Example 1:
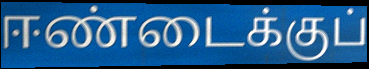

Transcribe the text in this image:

ஈண்டைக்குப்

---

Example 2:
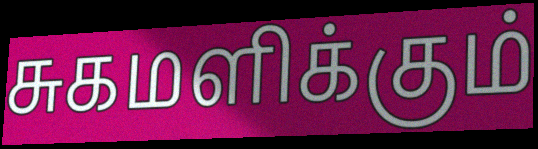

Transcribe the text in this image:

சுகமளிக்கும்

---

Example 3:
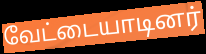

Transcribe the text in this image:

வேட்டையாடினர்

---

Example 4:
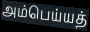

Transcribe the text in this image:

அம்பெய்யத்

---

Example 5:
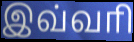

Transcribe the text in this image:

இவ்வரி